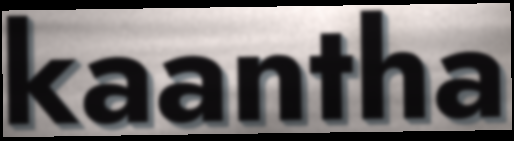
kaantha